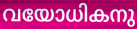
വയോധികനു